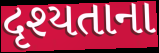
દૃશ્યતાના